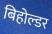
बिहोल्डर